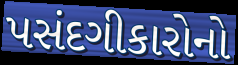
પસંદગીકારોનો